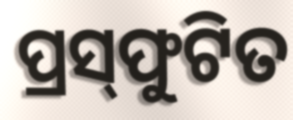
ପ୍ରସ୍‌ଫୁଟିତ